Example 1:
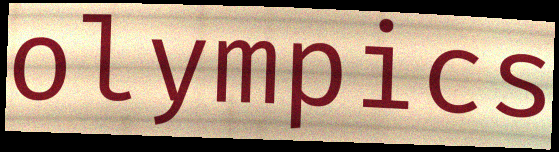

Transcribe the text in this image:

olympics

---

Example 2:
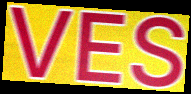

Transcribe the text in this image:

VES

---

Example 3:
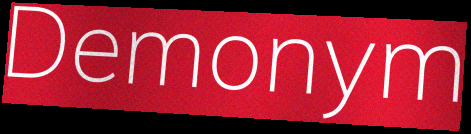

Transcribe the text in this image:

Demonym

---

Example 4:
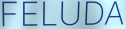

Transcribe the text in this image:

FELUDA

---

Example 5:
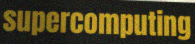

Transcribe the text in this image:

supercomputing